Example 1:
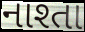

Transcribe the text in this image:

નાશ્તા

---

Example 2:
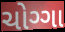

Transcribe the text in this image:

ચોગ્ગા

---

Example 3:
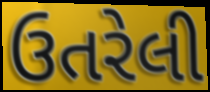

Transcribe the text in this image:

ઉતરેલી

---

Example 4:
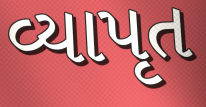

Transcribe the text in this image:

વ્યાપૃત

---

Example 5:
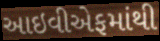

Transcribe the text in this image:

આઇવીએફમાંથી